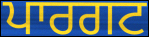
ਪਾਰਗਟ